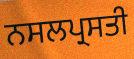
ਨਸਲਪ੍ਰਸਤੀ